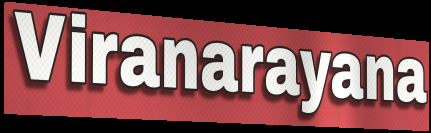
Viranarayana